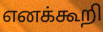
எனக்கூறி